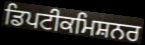
ਡਿਪਟੀਕਮਿਸ਼ਨਰ